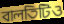
বালতিটিও